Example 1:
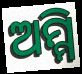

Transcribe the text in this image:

ଅମ୍ମି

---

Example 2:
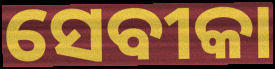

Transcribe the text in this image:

ସେବୀକା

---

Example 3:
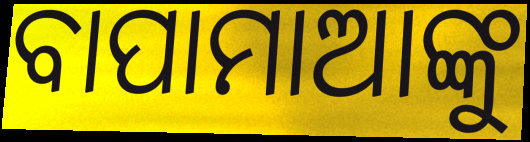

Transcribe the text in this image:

ବାପାମାଆଙ୍କୁ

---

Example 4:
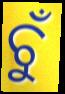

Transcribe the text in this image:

ଚୁଁ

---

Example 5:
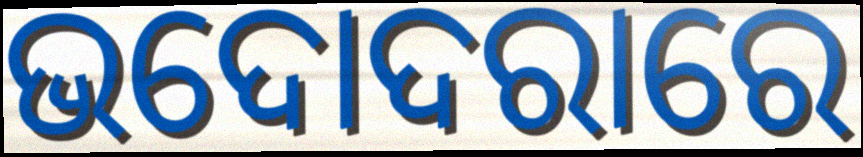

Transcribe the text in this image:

ଭଦୋଦରାରେ